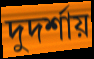
দুদর্শায়